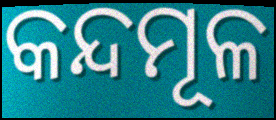
କନ୍ଦମୂଳ